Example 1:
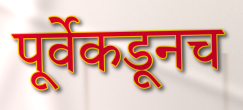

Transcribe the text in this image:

पूर्वेकडूनच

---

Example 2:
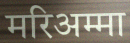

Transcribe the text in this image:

मरिअम्मा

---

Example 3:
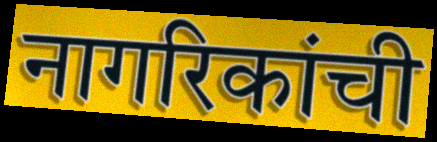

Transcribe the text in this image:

नागरिकांची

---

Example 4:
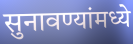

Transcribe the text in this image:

सुनावण्यांमध्ये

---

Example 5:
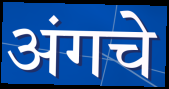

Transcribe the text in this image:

अंगचे